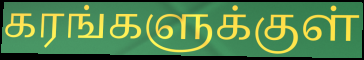
கரங்களுக்குள்